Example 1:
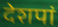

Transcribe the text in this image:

देशपां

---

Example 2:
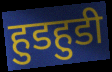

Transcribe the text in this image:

हुडहुडी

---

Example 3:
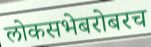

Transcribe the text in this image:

लोकसभेबरोबरच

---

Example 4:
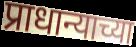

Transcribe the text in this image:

प्राधान्याच्या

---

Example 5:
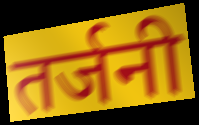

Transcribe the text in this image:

तर्जनी